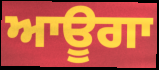
ਆਊਗਾ